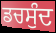
ਡਚਸੁੰਦ